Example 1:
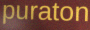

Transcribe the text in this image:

puraton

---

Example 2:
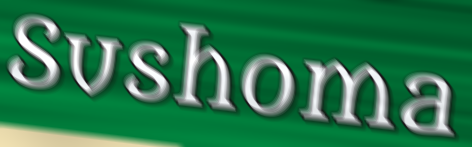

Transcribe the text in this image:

Sushoma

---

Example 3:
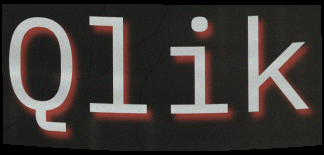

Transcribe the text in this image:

Qlik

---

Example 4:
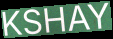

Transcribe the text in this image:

KSHAY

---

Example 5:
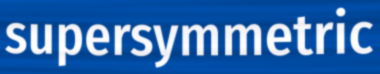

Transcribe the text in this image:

supersymmetric